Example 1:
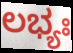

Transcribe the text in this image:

ಲಭ್ಯಃ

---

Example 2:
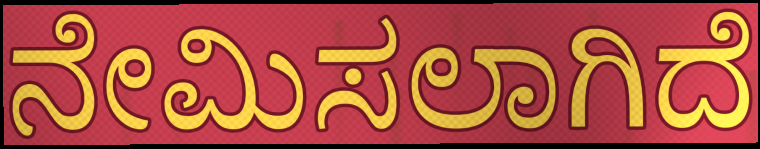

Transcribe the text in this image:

ನೇಮಿಸಲಾಗಿದೆ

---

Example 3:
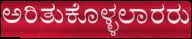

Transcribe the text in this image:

ಅರಿತುಕೊಳ್ಳಲಾರರು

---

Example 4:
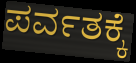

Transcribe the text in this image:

ಪರ್ವತಕ್ಕೆ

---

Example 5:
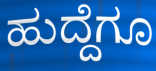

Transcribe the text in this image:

ಹುದ್ದೆಗೂ